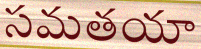
సమతయా